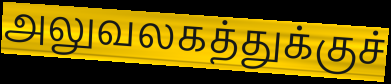
அலுவலகத்துக்குச்